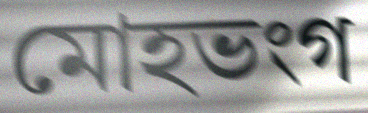
মোহভংগ